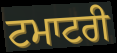
ਟਮਾਟਰੀ